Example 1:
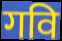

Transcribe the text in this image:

गवि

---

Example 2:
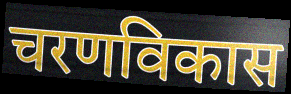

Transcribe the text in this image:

चरणविकास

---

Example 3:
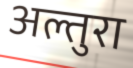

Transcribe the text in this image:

अल्तुरा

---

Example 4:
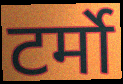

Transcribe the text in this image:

टर्मो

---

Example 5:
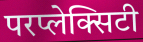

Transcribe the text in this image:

परप्लेक्सिटी